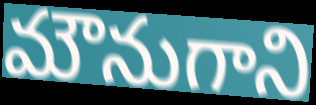
మౌనుగాని